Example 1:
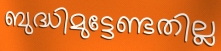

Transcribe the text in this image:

ബുദ്ധിമുട്ടേണ്ടതില്ല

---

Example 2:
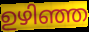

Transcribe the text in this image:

ഉഴിഞ്ഞ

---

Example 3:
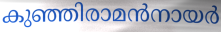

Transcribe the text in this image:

കുഞ്ഞിരാമൻനായർ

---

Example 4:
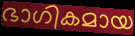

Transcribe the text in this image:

ഭാഗികമായ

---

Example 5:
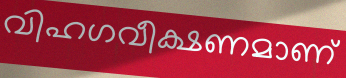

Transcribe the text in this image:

വിഹഗവീക്ഷണമാണ്